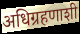
अधिग्रहणाशी